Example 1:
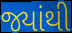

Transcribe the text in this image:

જ્યાંથી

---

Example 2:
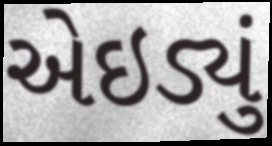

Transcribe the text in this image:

એઇડ્યું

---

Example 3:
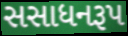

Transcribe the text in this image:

સસાધનરૂપ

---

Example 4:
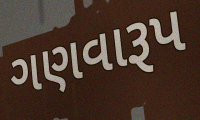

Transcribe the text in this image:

ગણવારૂપ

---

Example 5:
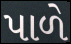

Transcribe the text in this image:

પાળે